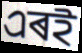
এৰই